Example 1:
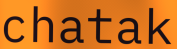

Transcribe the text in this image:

chatak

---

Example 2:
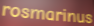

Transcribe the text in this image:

rosmarinus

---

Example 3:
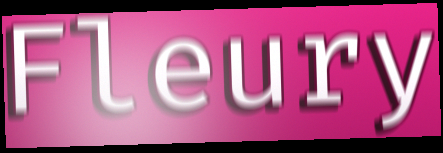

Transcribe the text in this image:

Fleury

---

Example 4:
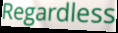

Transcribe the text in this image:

Regardless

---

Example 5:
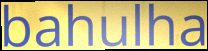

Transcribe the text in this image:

bahulha